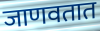
जाणवतात